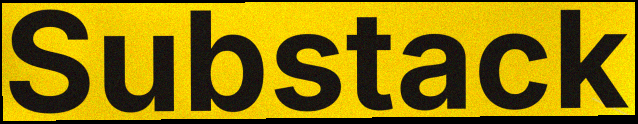
Substack